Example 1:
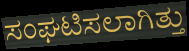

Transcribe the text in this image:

ಸಂಘಟಿಸಲಾಗಿತ್ತು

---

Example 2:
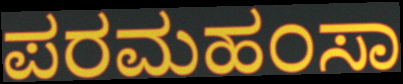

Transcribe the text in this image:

ಪರಮಹಂಸಾ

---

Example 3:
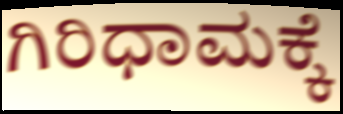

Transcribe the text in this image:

ಗಿರಿಧಾಮಕ್ಕೆ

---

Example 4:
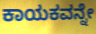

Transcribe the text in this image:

ಕಾಯಕವನ್ನೇ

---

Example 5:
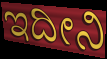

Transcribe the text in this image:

ಇದೀನಿ